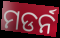
ମଡର୍ନ